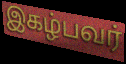
இகழ்பவர்